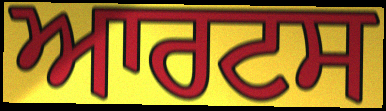
ਆਰਟਸ